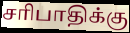
சரிபாதிக்கு